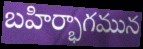
బహిర్భాగమున